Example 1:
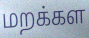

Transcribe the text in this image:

மறக்கள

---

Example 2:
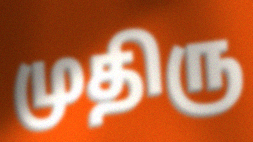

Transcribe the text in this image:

முதிரு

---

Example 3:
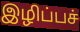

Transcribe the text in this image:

இழிப்பச்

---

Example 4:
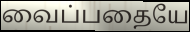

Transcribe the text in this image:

வைப்பதையே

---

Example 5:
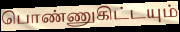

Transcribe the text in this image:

பொண்ணுகிட்டயும்